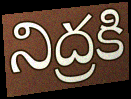
నిద్రకి